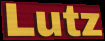
Lutz